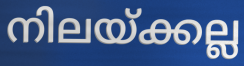
നിലയ്ക്കല്ല